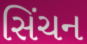
સિંચન